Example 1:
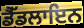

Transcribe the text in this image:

ਡੈੱਡਲਾਇਨ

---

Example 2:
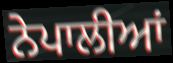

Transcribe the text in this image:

ਨੇਪਾਲੀਆਂ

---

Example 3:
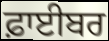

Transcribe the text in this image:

ਫ਼ਾਈਬਰ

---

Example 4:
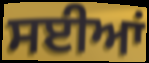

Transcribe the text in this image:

ਸਈਆਂ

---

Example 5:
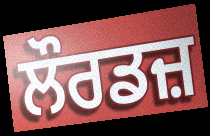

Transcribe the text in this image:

ਲੌਰਡਜ਼